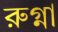
রুগ্না